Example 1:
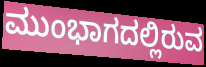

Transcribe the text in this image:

ಮುಂಭಾಗದಲ್ಲಿರುವ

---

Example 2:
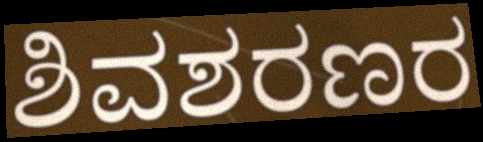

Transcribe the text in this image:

ಶಿವಶರಣರ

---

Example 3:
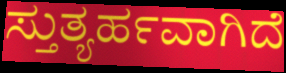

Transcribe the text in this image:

ಸ್ತುತ್ಯರ್ಹವಾಗಿದೆ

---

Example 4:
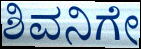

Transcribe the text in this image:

ಶಿವನಿಗೇ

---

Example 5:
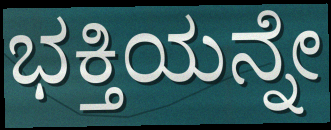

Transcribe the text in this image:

ಭಕ್ತಿಯನ್ನೇ